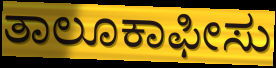
ತಾಲೂಕಾಫೀಸು